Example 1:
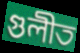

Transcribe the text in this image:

গুলীত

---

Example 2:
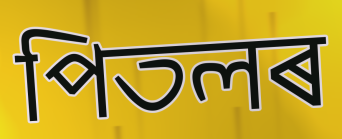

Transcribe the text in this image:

পিতলৰ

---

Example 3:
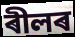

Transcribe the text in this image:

ৰীলৰ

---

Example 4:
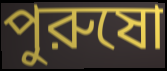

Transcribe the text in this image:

পুৰুষো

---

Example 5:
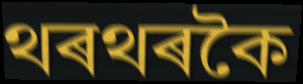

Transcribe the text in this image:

থৰথৰকৈ